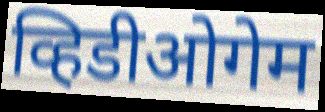
व्हिडीओगेम